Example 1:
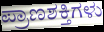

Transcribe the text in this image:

ಪ್ರಾಣಶಕ್ತಿಗಳು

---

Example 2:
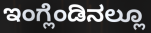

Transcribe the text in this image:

ಇಂಗ್ಲೆಂಡಿನಲ್ಲೂ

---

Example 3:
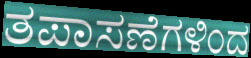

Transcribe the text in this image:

ತಪಾಸಣೆಗಳಿಂದ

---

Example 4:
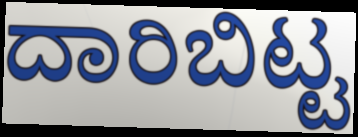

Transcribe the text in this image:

ದಾರಿಬಿಟ್ಟ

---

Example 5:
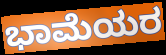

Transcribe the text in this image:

ಭಾಮೆಯರ